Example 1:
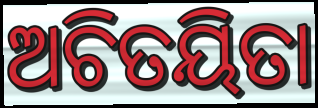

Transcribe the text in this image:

ଅଚିତୟିତା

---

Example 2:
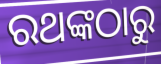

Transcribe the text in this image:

ରଥଙ୍କଠାରୁ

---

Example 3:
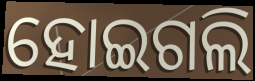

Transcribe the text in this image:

ହୋଇଗଲି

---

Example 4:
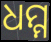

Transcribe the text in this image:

ଧମ୍ମ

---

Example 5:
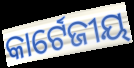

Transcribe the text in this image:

କାର୍ଟେଜୀୟ